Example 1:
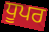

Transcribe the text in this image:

ਧੂਪਰ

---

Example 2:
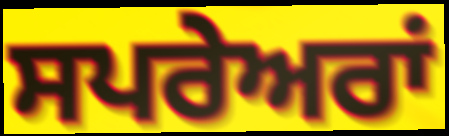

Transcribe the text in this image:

ਸਪਰੇਅਰਾਂ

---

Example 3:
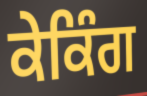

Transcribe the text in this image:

ਕੇਕਿੰਗ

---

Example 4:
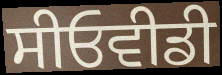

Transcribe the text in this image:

ਸੀਓਵੀਡੀ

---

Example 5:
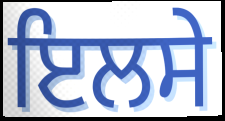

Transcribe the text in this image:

ਇਲਸੇ